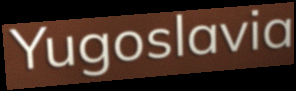
Yugoslavia